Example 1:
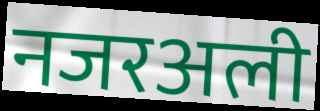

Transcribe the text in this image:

नजरअली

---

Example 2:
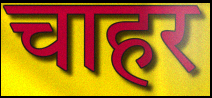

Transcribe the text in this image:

चाहर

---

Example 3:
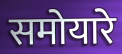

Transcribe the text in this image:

समोयारे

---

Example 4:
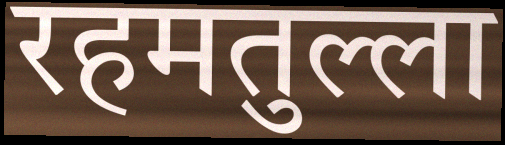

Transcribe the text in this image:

रहमतुल्ला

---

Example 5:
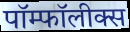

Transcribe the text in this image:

पॉम्फॉलीक्स